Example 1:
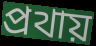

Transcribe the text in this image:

প্রথায়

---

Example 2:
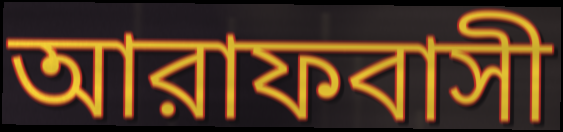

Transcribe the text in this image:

আরাফবাসী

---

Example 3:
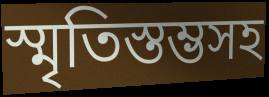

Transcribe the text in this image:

স্মৃতিস্তম্ভসহ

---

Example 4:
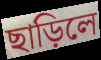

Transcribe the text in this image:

ছাড়িলে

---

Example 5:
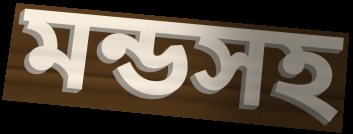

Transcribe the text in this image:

মন্ডসহ